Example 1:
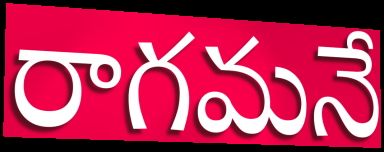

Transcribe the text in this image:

రాగమనే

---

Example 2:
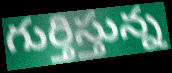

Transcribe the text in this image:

గుర్తిస్తున్న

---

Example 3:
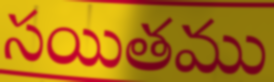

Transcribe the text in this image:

సయితము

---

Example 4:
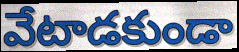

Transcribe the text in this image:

వేటాడకుండా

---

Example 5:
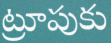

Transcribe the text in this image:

ట్రూపుకు